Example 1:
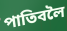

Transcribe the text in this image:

পাতিবলৈ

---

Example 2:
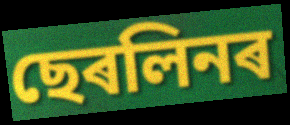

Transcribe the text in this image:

ছেৰলিনৰ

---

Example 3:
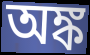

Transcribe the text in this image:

অঙ্ক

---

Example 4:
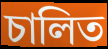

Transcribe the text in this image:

চালিত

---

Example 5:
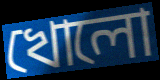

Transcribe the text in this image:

খোলো